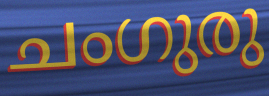
ചംഗുരു